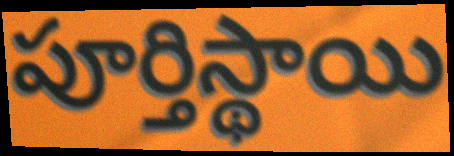
పూర్తిస్థాయి